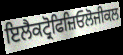
ਇਲੈਕਟ੍ਰੋਫਿਜ਼ਿਓਲੋਜੀਕਲ